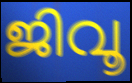
ജിവൂ